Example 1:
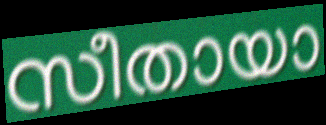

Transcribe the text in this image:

സീതായാ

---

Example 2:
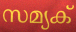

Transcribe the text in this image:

സമ്യക്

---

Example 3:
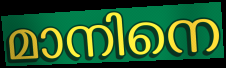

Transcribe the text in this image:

മാനിനെ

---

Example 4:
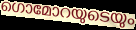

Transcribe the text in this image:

ഗൊമോറയുടെയും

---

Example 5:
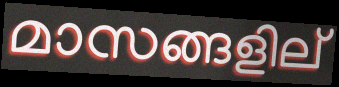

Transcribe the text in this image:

മാസങ്ങളില്